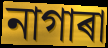
নাগাৰা